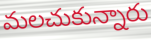
మలచుకున్నారు